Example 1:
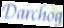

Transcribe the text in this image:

Darchog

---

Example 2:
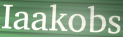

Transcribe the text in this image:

Iaakobs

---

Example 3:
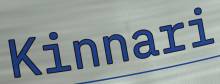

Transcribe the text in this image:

Kinnari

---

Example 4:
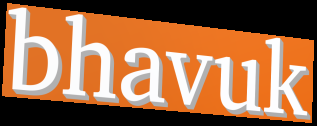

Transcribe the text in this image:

bhavuk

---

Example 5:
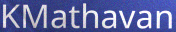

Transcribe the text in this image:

KMathavan